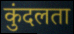
कुंदलता